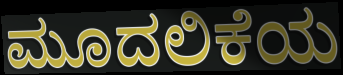
ಮೂದಲಿಕೆಯ